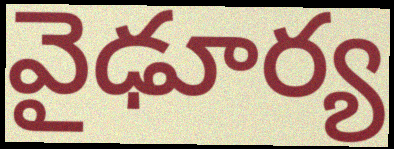
వైఢూర్య